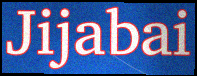
Jijabai